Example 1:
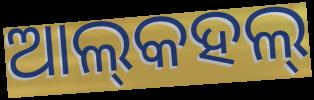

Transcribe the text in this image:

ଆଲ୍‌କହଲ୍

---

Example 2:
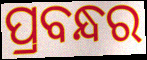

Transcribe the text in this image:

ପ୍ରବନ୍ଧର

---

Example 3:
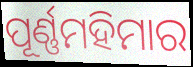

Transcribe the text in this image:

ପୂର୍ଣ୍ଣମହିମାର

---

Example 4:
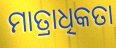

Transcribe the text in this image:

ମାତ୍ରାଧିକତା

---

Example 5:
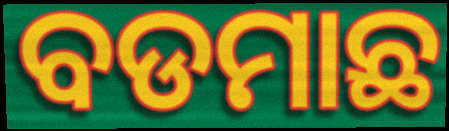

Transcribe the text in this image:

ବଡମାଛ